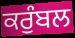
ਕਰੁੰਬਲ